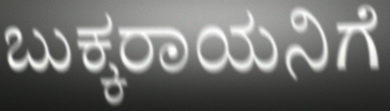
ಬುಕ್ಕರಾಯನಿಗೆ